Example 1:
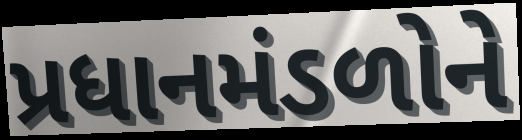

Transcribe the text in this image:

પ્રધાનમંડળોને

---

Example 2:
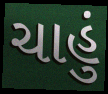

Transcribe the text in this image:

ચાહું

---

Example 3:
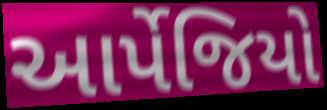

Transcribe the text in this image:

આર્પેજિયો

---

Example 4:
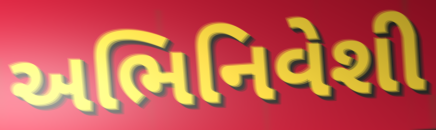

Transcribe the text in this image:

અભિનિવેશી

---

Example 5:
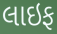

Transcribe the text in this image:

લાઇફ